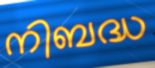
നിബദ്ധ